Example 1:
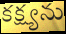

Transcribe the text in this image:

కక్ష్యను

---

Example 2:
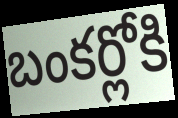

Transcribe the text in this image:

బంకర్లోకి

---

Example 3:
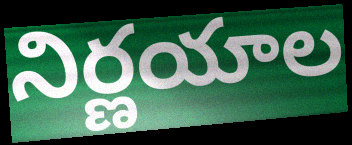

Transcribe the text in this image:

నిర్ణయాల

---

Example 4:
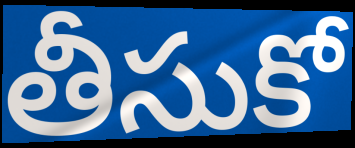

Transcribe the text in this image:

తీసుకో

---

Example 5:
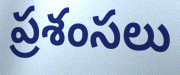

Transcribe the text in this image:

ప్రశంసలు